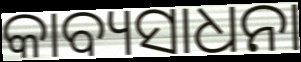
କାବ୍ୟସାଧନା